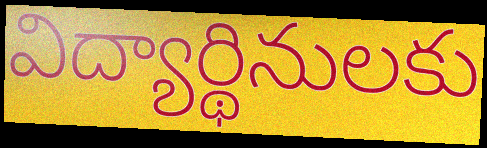
విద్యార్థినులకు